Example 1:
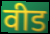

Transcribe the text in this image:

वीड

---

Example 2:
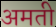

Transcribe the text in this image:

अमती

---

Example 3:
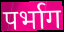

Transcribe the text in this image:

पर्भाग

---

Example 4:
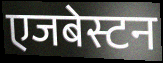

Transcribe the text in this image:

एजबेस्‍टन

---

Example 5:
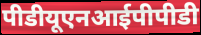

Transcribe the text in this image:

पीडीयूएनआईपीपीडी